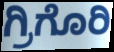
ಗ್ರಿಗೊರಿ